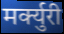
मर्क्युरी